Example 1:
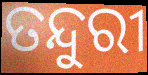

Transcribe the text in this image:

ତନ୍ଦୁରୀ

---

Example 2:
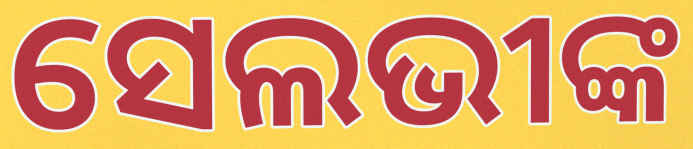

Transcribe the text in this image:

ସେଲଭୀଙ୍କ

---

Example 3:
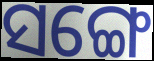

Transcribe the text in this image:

ସଙ୍ଗେ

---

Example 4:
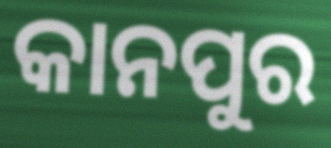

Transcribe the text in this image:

କାନପୁର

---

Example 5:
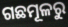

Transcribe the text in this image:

ଗଛମୂଳରୁ